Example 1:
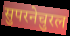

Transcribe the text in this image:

सुपरनेचुरल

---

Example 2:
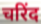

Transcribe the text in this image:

चरिंद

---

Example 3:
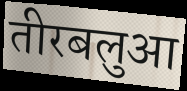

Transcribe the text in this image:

तीरबलुआ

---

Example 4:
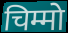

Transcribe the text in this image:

चिम्मो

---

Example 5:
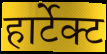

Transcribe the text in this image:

हार्टेक्ट